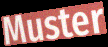
Muster